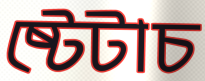
ষ্টেটাচ